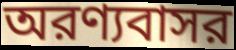
অরণ্যবাসর